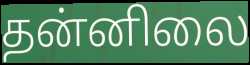
தன்னிலை